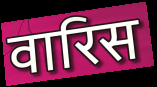
वारिस